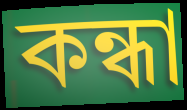
কন্ধা